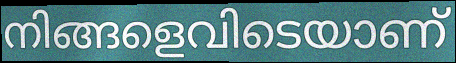
നിങ്ങളെവിടെയാണ്